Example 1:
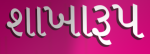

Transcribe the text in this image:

શાખારૂપ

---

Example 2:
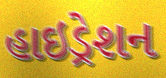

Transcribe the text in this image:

હાઇડ્રેશન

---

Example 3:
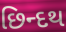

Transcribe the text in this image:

છિન્દથ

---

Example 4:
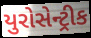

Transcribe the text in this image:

યુરોસેન્ટ્રીક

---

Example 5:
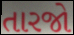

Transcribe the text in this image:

તારજો